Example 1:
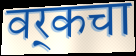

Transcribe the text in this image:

वर्कचा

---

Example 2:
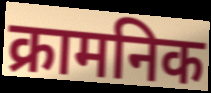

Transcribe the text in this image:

क्रामनिक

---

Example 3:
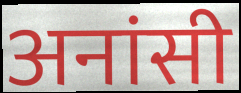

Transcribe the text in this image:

अनांसी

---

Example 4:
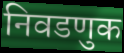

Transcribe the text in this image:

निवडणुक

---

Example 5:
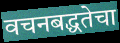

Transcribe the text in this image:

वचनबद्धतेचा